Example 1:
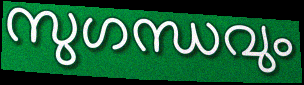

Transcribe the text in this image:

സുഗന്ധവും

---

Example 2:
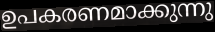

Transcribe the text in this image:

ഉപകരണമാക്കുന്നു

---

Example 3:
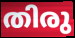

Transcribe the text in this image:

തിരു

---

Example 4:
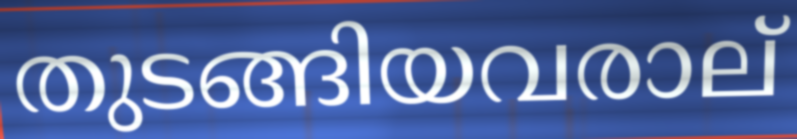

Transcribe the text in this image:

തുടങ്ങിയവരാല്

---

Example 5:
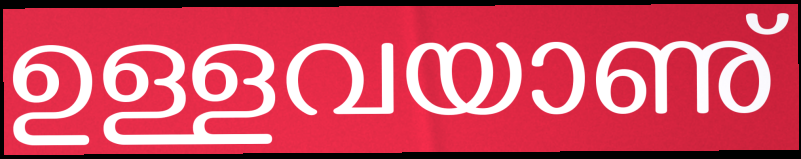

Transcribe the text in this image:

ഉള്ളവയാണു്